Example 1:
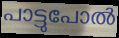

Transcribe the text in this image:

പാട്ടുപോൽ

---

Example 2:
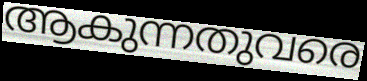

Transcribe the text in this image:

ആകുന്നതുവരെ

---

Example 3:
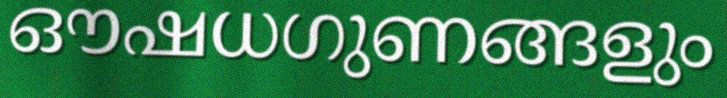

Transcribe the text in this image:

ഔഷധഗുണങ്ങളും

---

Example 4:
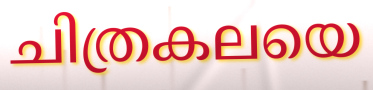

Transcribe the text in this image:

ചിത്രകലയെ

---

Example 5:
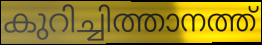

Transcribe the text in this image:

കുറിച്ചിത്താനത്ത്